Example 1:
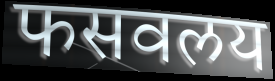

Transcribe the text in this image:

फसवलय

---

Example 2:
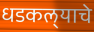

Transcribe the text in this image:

धडकल्याचे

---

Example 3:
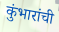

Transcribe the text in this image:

कुंभारांची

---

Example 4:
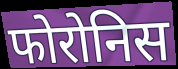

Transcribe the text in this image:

फोरोनिस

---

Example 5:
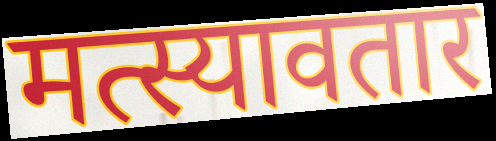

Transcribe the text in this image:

मत्स्यावतार